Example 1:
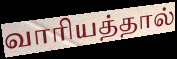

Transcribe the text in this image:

வாரியத்தால்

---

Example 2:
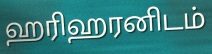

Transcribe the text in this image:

ஹரிஹரனிடம்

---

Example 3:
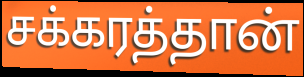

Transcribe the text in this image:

சக்கரத்தான்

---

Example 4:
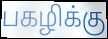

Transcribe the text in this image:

பகழிக்கு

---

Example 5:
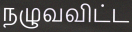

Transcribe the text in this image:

நழுவவிட்ட